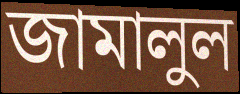
জামালুল